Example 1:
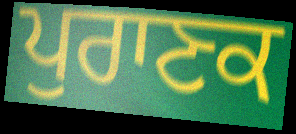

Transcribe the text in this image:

ਪੁਰਾਣਕ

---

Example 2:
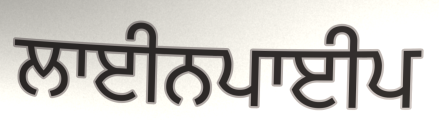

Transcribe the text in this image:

ਲਾਈਨਪਾਈਪ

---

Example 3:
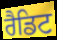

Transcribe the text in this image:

ਰੈਡਿਟ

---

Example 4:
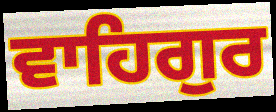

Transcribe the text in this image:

ਵਾਹਿਗੁਰ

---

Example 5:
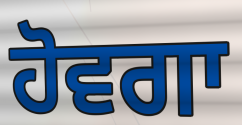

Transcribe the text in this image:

ਹੋਵਗਾ